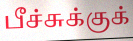
பீச்சுக்குக்